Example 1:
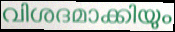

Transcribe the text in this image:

വിശദമാക്കിയും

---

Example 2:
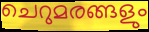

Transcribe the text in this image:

ചെറുമരങ്ങളും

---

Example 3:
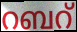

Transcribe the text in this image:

റബറ്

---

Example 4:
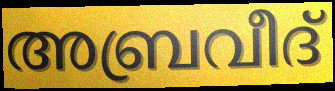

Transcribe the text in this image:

അബ്രവീദ്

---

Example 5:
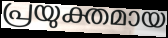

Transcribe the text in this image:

പ്രയുക്തമായ